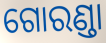
ଗୋରଣ୍ଡା